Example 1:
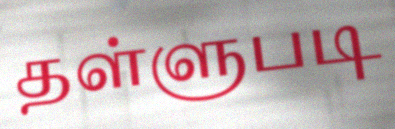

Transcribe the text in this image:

தள்ளுபடி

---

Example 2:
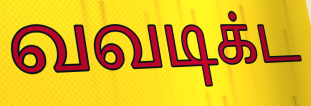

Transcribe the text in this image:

வவடிக்ட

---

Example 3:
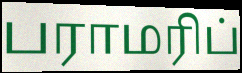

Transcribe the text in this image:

பராமரிப்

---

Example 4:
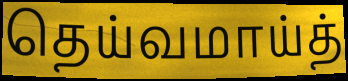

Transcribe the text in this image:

தெய்வமாய்த்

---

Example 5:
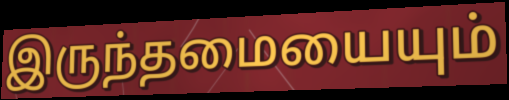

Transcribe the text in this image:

இருந்தமையையும்